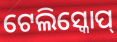
ଟେଲିସ୍କୋପ୍